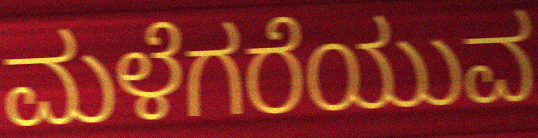
ಮಳೆಗರೆಯುವ